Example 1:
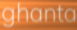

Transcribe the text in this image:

ghanta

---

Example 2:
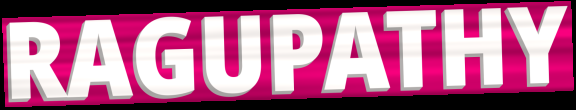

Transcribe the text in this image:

RAGUPATHY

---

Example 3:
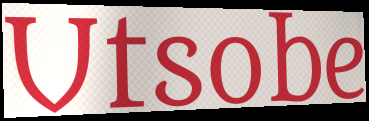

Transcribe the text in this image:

Utsobe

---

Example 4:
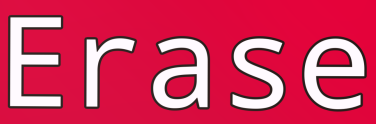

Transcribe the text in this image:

Erase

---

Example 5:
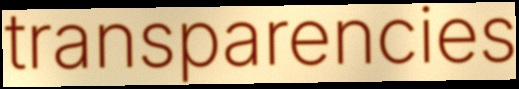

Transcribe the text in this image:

transparencies